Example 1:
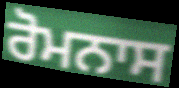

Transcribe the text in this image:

ਰੋਮਨਾਸ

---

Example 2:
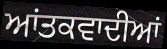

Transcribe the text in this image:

ਆਂਤਕਵਾਦੀਆਂ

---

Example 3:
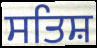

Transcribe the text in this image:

ਸਤਿਸ਼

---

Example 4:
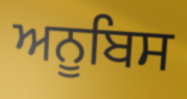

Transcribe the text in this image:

ਅਨੂਬਿਸ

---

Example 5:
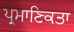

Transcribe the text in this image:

ਪ੍ਰਮਾਣਿਕਤਾ